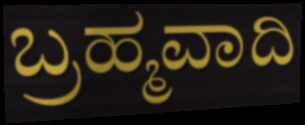
ಬ್ರಹ್ಮವಾದಿ